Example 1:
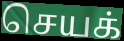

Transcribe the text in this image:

செயக்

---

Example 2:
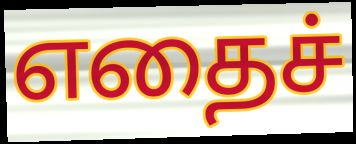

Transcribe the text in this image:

எதைச்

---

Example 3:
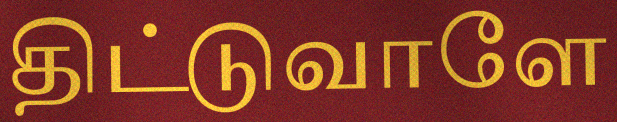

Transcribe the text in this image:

திட்டுவாளே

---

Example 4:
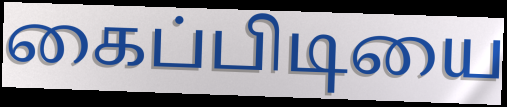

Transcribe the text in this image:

கைப்பிடியை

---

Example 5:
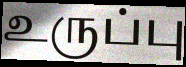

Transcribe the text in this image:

உருப்பு